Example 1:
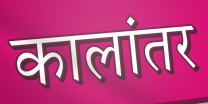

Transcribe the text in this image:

कालांतर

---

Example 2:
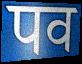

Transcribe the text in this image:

पव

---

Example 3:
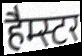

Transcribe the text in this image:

हैम्स्टर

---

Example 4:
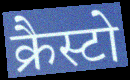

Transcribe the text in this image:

क्रैस्टो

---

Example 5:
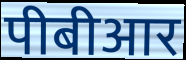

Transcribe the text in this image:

पीबीआर